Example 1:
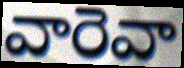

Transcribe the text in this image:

వారెవా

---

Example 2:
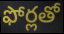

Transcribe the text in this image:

ఫోర్లతో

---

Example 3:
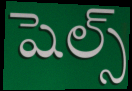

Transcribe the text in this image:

షెల్స్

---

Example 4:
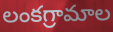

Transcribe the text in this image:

లంకగ్రామాల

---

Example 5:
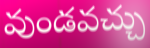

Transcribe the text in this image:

వుండవచ్చు